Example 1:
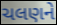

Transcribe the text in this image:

ચલણને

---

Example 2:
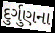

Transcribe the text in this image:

દુર્ગુણના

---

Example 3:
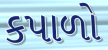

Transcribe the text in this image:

કપાળો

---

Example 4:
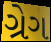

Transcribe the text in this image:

ગ્રેગ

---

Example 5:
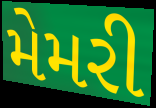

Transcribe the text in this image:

મેમરી